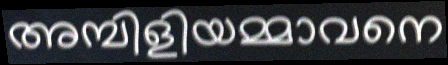
അമ്പിളിയമ്മാവനെ